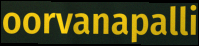
oorvanapalli